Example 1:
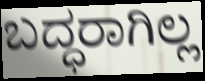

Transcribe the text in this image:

ಬದ್ಧರಾಗಿಲ್ಲ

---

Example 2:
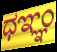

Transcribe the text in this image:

ಧಞ್ಞಂ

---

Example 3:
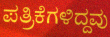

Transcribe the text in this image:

ಪತ್ರಿಕೆಗಳಿದ್ದವು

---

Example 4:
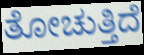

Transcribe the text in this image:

ತೋಚುತ್ತಿದೆ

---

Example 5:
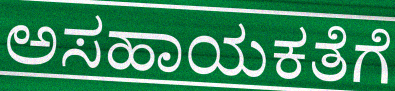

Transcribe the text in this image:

ಅಸಹಾಯಕತೆಗೆ